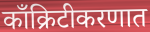
काँक्रिटीकरणात